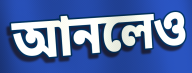
আনলেও